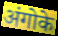
अंगोके